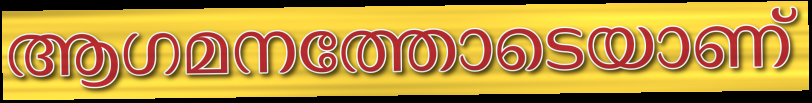
ആഗമനത്തോടെയാണ്